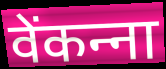
वेंकन्ना